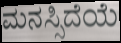
ಮನಸ್ಸಿದೆಯೆ